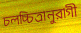
চলচ্চিত্রানুরাগী